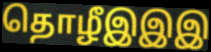
தொழீஇஇஇ